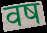
वष